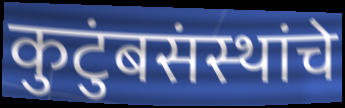
कुटुंबसंस्थांचे